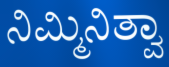
ನಿಮ್ಮಿನಿತ್ವಾ